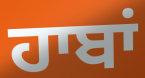
ਹਾਬਾਂ